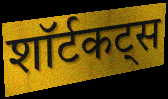
शॉर्टकट्स